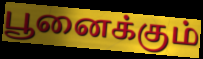
பூனைக்கும்